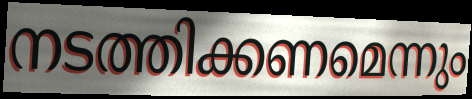
നടത്തിക്കണമെന്നും